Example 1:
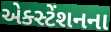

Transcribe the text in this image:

એક્સ્ટેંશનના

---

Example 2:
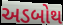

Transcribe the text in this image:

અડબોથ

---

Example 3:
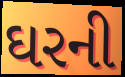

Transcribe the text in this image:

ઘરની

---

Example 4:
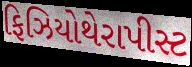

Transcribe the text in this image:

ફિઝિયોથેરાપીસ્ટ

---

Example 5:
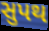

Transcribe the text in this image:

સુપથ